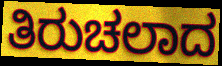
ತಿರುಚಲಾದ